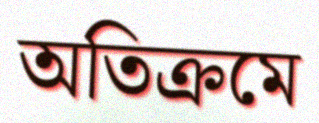
অতিক্ৰমে